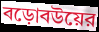
বড়োবউয়ের